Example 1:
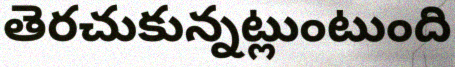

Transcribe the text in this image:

తెరచుకున్నట్లుంటుంది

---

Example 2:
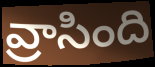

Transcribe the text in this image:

వ్రాసింది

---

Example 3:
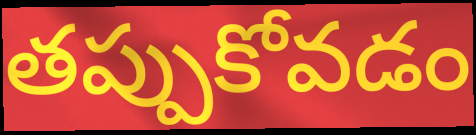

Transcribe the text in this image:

తప్పుకోవడం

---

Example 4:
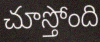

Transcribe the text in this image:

చూస్తోంది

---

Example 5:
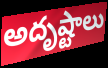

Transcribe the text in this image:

అదృష్టాలు